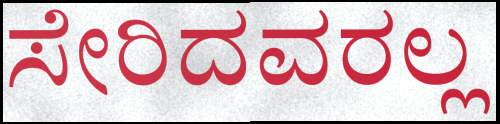
ಸೇರಿದವರಲ್ಲ